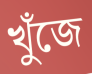
খুঁজে